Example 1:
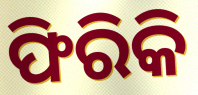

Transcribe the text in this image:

ଫିରିକି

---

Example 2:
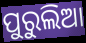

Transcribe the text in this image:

ପୁରୁଲିଆ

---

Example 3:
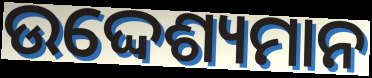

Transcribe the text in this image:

ଉଦ୍ଦେଶ୍ୟମାନ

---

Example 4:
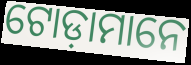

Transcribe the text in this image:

ଟୋଡ଼ାମାନେ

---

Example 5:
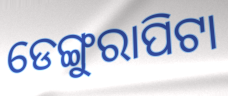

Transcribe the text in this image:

ଡେଙ୍ଗୁରାପିଟା